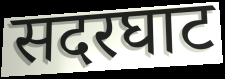
सदरघाट